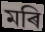
মৰি